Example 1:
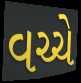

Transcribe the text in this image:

વચ્ચે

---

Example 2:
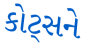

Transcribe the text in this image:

કોટ્સને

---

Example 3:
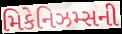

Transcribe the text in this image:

મિકેનિઝમ્સની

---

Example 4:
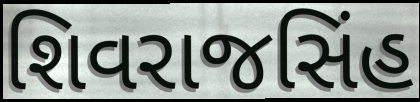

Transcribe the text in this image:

શિવરાજસિંહ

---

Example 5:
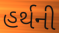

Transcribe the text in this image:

હર્થની